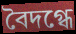
বৈদগ্ধে